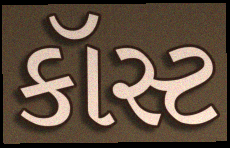
કૉસ્ટ